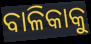
ବାଳିକାକୁ